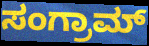
ಸಂಗ್ರಾಮ್